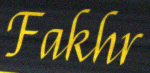
Fakhr